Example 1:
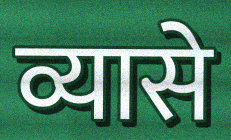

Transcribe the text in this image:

व्यासे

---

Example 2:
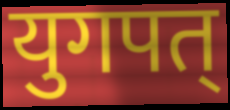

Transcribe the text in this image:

युगपत्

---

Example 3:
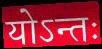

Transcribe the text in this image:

योऽन्तः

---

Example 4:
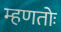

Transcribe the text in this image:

म्हणतोः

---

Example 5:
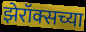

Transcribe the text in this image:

झेरॉक्सच्या